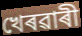
খেৰৱাৰী